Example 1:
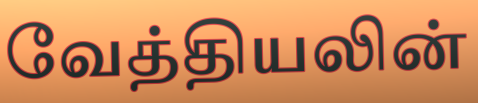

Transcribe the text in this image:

வேத்தியலின்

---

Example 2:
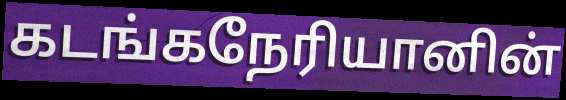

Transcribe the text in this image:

கடங்கநேரியானின்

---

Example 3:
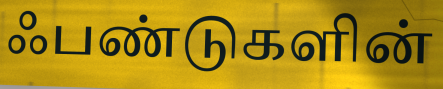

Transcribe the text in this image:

ஃபண்டுகளின்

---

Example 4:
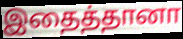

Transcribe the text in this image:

இதைத்தானா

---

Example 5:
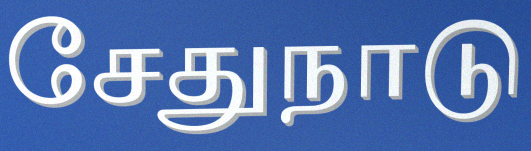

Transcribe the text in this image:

சேதுநாடு